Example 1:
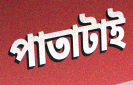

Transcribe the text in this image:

পাতাটাই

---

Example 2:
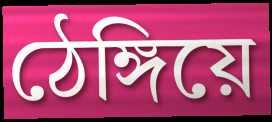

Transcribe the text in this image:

ঠেঙ্গিয়ে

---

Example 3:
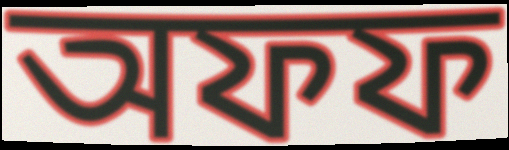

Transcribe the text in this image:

অফফ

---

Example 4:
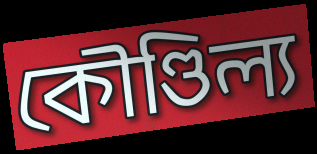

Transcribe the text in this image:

কৌণ্ডিল্য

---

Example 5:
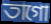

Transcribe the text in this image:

তাগো